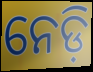
ନେଡ଼ି